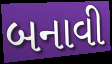
બનાવી